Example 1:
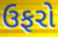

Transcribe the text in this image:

ઉફરો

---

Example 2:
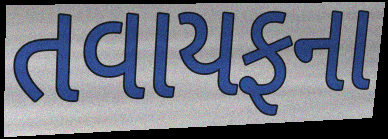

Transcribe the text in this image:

તવાયફના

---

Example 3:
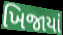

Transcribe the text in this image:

ખિજાયાં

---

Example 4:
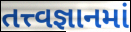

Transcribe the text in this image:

તત્ત્વજ્ઞાનમાં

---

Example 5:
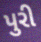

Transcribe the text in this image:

પુરી